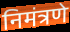
निमंत्रणे